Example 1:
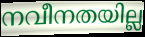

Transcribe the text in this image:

നവീനതയില്ല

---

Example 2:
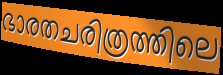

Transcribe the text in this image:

ഭാരതചരിത്രത്തിലെ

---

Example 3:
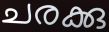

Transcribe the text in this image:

ചരക്കു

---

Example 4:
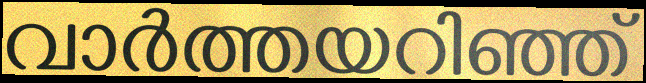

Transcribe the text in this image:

വാർത്തയറിഞ്ഞ്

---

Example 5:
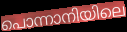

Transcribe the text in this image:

പൊന്നാനിയിലെ